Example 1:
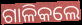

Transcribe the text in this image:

ଗାଳିକଲେ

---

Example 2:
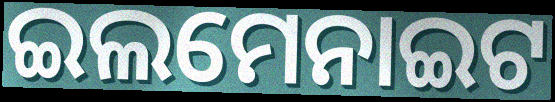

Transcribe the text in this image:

ଇଲମେନାଇଟ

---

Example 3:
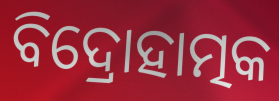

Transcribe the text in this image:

ବିଦ୍ରୋହାତ୍ମକ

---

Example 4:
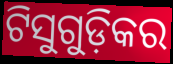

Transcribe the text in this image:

ଟିସୁଗୁଡ଼ିକର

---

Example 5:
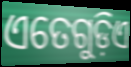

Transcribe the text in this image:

ଏତେଗୁଡ଼ିଏ